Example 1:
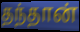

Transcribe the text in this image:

தந்தான்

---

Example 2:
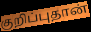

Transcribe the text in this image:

குறிப்புதான்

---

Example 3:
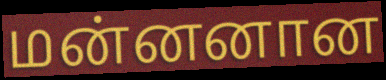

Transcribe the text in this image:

மன்னனான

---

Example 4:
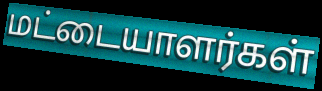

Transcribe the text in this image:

மட்டையாளர்கள்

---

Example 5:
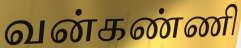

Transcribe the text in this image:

வன்கண்ணி